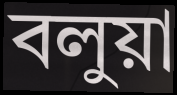
বলুয়া